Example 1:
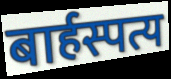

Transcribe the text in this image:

बार्हस्पत्य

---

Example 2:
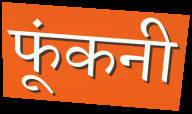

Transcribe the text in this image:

फूंकनी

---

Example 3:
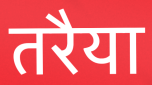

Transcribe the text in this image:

तरैया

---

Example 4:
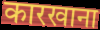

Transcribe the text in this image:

कारखाना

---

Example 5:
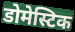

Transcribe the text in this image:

डोमेस्टिक